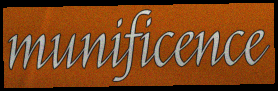
munificence